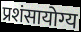
प्रशंसायोग्य